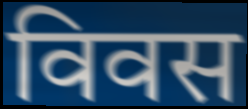
विवस